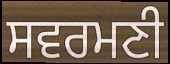
ਸਵਰਮਣੀ